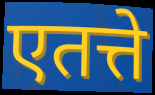
एतत्ते